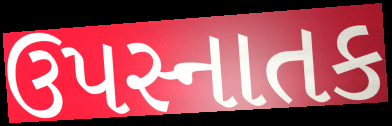
ઉપસ્નાતક